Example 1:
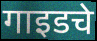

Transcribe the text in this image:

गाइडचे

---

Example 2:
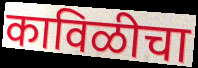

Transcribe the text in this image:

काविळीचा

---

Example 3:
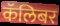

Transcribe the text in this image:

कॅलिबर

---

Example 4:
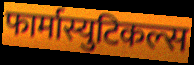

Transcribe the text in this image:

फार्मास्युटिकल्स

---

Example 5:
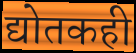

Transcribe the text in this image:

द्योतकही